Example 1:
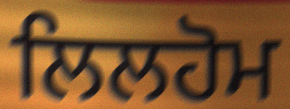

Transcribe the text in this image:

ਲਿਲਹੋਮ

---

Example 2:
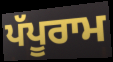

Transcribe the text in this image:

ਪੱਪੂਰਾਮ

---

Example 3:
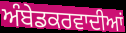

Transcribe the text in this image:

ਅੰਬੇਡਕਰਵਾਦੀਆਂ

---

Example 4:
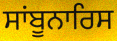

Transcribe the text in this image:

ਸਾਂਬੂਨਾਰਿਸ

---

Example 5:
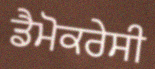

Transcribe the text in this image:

ਡੈਮੋਕਰੇਸੀ